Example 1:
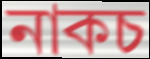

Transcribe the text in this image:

নাকচ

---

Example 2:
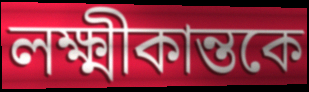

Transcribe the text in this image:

লক্ষ্মীকান্তকে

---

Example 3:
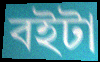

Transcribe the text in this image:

বইটা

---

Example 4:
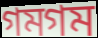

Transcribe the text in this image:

গমগম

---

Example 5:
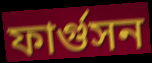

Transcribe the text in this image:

ফার্গুসন